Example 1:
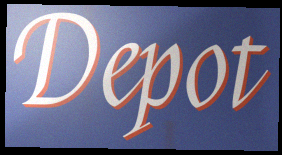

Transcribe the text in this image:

Depot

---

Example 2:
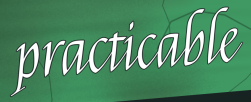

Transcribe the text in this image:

practicable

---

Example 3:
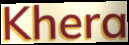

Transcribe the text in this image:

Khera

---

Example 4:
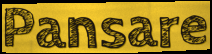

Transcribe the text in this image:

Pansare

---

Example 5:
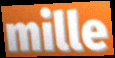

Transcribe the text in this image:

mille